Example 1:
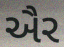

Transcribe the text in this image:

ઐર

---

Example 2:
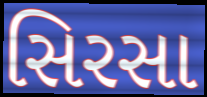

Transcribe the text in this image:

સિરસા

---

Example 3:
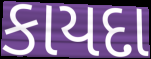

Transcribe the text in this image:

કાયદા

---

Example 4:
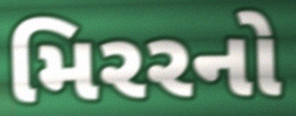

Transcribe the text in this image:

મિરરનો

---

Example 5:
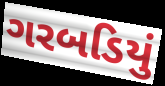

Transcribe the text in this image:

ગરબડિયું